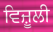
ਵਿਜ਼ੂਲੀ